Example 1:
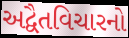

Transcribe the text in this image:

અદ્વૈતવિચારનો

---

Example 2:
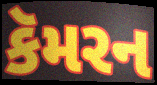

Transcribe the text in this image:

કૅમરન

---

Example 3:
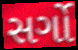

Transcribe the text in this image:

સર્ગો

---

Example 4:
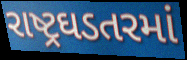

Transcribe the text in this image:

રાષ્ટ્રઘડતરમાં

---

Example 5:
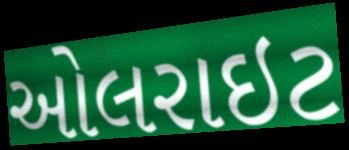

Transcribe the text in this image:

ઓલરાઇટ